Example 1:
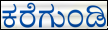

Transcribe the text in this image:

ಕರೆಗುಂಡಿ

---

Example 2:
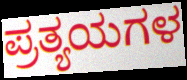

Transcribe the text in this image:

ಪ್ರತ್ಯಯಗಳ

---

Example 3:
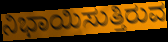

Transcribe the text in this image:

ನಿಭಾಯಿಸುತ್ತಿರುವ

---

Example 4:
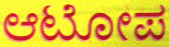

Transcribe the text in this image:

ಆಟೋಪ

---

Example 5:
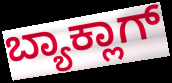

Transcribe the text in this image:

ಬ್ಯಾಕ್ಲಾಗ್